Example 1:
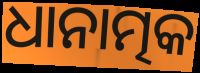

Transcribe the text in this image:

ଧାନାତ୍ମକ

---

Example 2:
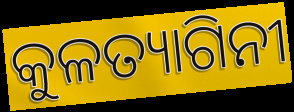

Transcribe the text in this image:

କୁଳତ୍ୟାଗିନୀ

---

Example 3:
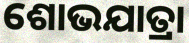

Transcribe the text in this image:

ଶୋଭଯାତ୍ରା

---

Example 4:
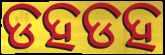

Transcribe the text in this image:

ଡହଡହ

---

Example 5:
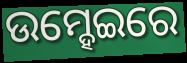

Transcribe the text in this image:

ଉମ୍ହେଇରେ